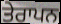
ਤੇਰਾਪਨ